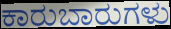
ಕಾರುಬಾರುಗಳು